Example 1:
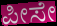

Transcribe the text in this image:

ಪೀಸೇ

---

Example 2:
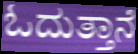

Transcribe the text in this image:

ಓದುತ್ತಾನೆ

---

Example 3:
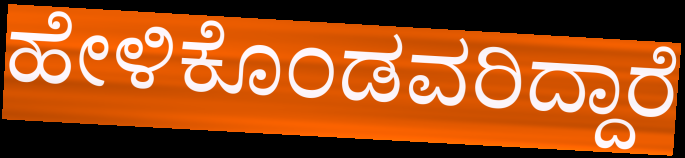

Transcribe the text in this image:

ಹೇಳಿಕೊಂಡವರಿದ್ದಾರೆ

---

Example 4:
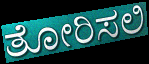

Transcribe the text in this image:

ತೋರಿಸಲಿ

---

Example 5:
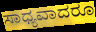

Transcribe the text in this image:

ಸಾಧ್ಯವಾದರೂ